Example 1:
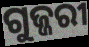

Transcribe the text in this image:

ଗୁଜ୍ଜରୀ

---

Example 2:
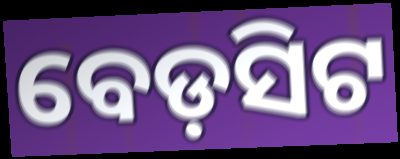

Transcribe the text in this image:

ବେଡ଼ସିଟ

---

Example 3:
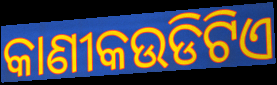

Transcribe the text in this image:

କାଣୀକଉଡିଟିଏ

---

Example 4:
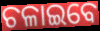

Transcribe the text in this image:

ଚଳାଇବେ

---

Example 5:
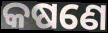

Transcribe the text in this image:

କଷଣେ